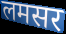
लमसर